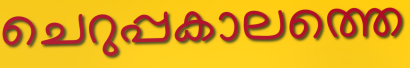
ചെറുപ്പകാലത്തെ